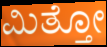
ಮಿತ್ತೋ